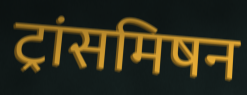
ट्रांसमिषन